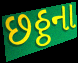
છઠ્ઠના